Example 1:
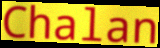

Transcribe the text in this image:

Chalan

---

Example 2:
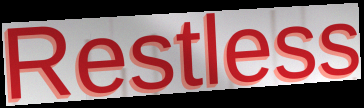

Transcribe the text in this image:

Restless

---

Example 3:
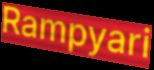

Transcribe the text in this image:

Rampyari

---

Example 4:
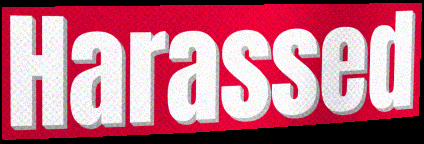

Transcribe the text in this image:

Harassed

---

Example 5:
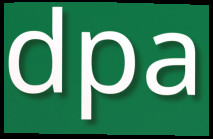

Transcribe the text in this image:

dpa